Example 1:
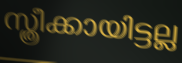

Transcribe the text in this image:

സ്ത്രീക്കായിട്ടല്ല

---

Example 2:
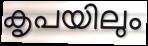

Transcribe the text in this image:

കൃപയിലും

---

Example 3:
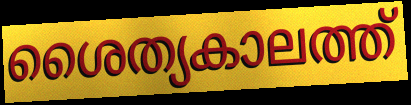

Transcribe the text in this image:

ശൈത്യകാലത്ത്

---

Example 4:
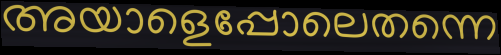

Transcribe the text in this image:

അയാളെപ്പോലെതന്നെ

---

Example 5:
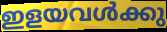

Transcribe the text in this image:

ഇളയവൾക്കു